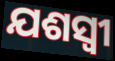
ଯଶସ୍ଵୀ